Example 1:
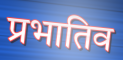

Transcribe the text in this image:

प्रभातिव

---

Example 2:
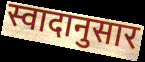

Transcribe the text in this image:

स्वादानुसार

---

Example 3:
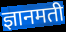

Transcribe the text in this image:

ज्ञानमती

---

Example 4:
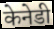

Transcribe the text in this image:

केनेडी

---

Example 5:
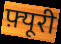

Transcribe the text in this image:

फ़्यूरी